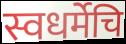
स्वधर्मेचि